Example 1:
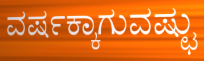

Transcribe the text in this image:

ವರ್ಷಕ್ಕಾಗುವಷ್ಟು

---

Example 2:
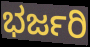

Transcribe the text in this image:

ಭರ್ಜರಿ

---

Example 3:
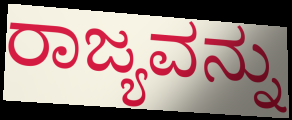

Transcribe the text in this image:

ರಾಜ್ಯವನ್ನು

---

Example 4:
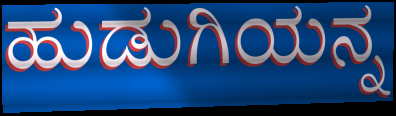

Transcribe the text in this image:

ಹುಡುಗಿಯನ್ನ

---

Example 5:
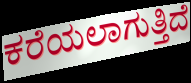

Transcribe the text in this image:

ಕರೆಯಲಾಗುತ್ತಿದೆ